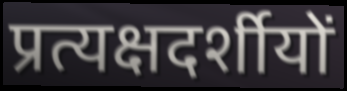
प्रत्यक्षदर्शीयों